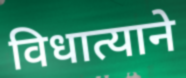
विधात्याने